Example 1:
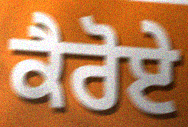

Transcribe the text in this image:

ਕੈਰੋਏ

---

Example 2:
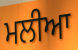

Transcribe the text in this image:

ਮਲੀਆ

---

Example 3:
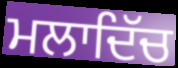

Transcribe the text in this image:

ਮਲਾਦਿੱਚ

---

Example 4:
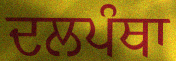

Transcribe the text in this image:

ਦਲਪੰਥਾ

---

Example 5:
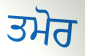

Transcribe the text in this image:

ਤਮੋਰ